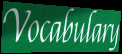
Vocabulary